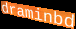
draminbd